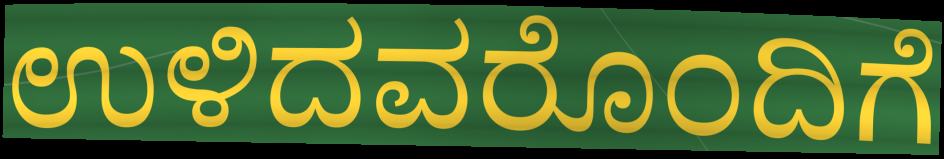
ಉಳಿದವರೊಂದಿಗೆ